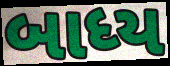
બાધ્ય